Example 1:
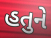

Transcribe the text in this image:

હતુને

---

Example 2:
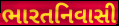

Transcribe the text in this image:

ભારતનિવાસી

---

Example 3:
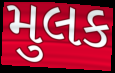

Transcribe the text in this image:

મુલક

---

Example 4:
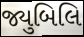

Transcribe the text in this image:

જ્યુબિલિ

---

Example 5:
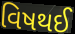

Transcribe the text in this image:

વિષથઈ